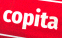
copita